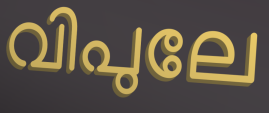
വിപുലേ